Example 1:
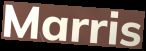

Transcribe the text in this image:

Marris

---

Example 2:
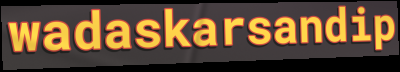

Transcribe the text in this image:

wadaskarsandip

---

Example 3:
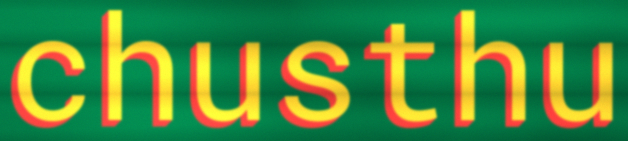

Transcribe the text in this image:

chusthu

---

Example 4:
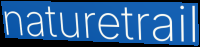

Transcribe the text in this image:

naturetrail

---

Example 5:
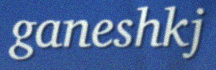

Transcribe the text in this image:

ganeshkj